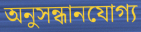
অনুসন্ধানযোগ্য